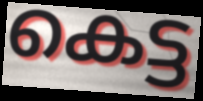
കെട്ട